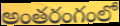
అంతరంగంలో